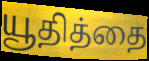
யூதித்தை